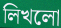
লিখলো